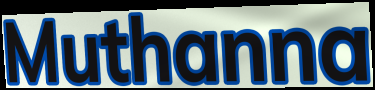
Muthanna